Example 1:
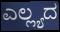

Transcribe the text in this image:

ಎಲ್ಲ್ಯದ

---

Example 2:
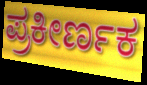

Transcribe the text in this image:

ಪ್ರಕೀರ್ಣಕ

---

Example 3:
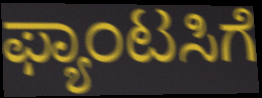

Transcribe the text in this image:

ಫ್ಯಾಂಟಸಿಗೆ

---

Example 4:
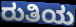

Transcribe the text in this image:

ರುತಿಯ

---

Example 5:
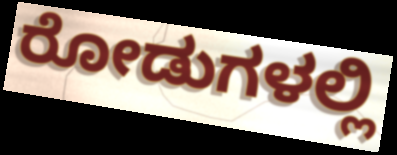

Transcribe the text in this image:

ರೋಡುಗಳಲ್ಲಿ